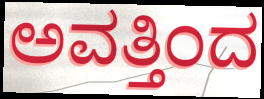
ಅವತ್ತಿಂದ